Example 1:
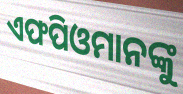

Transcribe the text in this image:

ଏଫପିଓମାନଙ୍କୁ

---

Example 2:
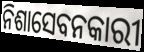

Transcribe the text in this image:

ନିଶାସେବନକାରୀ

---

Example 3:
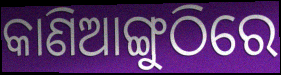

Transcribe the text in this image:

କାଣିଆଙ୍ଗୁଠିରେ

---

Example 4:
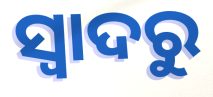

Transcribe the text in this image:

ସ୍ୱାଦରୁ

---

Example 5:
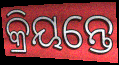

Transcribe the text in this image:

କ୍ରିୟନ୍ତେ